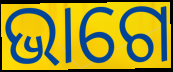
ଭାଗେ